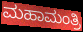
ಮಹಾಮಂತ್ರಿ